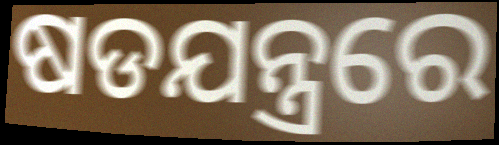
ଷଡଯନ୍ତ୍ରରେ